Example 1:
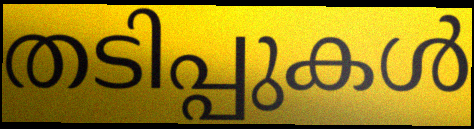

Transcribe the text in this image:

തടിപ്പുകൾ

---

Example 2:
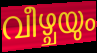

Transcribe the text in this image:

വീഴ്ചയും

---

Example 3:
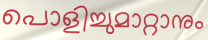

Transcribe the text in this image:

പൊളിച്ചുമാറ്റാനും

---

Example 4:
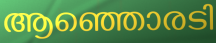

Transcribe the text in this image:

ആഞ്ഞൊരടി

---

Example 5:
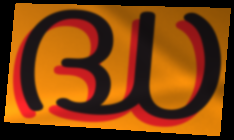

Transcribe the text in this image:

ദ്ധ